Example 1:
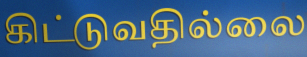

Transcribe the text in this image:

கிட்டுவதில்லை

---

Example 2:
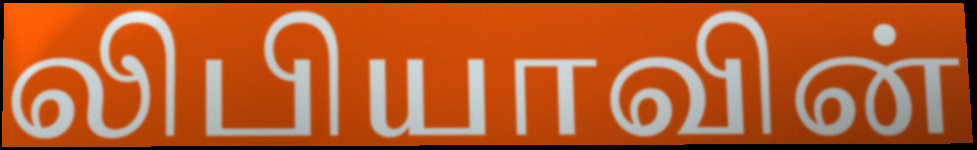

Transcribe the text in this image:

லிபியாவின்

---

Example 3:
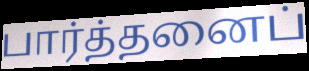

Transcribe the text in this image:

பார்த்தனைப்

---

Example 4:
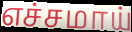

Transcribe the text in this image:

எச்சமாய்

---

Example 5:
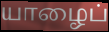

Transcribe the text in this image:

யாழைப்